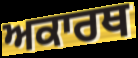
ਅਕਾਰਥ